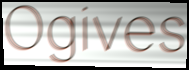
Ogives